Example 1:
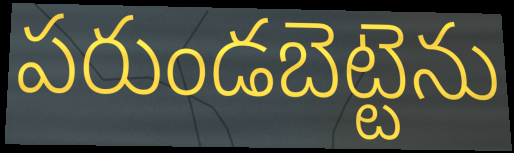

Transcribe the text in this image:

పరుండబెట్టెను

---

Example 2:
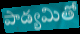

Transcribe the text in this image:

పాడ్యమితో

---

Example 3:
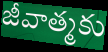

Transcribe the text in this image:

జీవాత్మకు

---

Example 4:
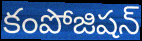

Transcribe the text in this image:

కంపోజిషన్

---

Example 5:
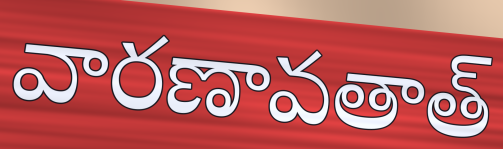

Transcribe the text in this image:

వారణావతాత్